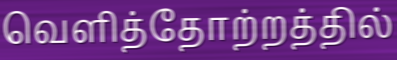
வெளித்தோற்றத்தில்